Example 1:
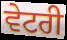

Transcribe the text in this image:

ਵੇਟਰੀ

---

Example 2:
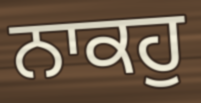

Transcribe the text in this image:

ਨਾਕਹੁ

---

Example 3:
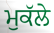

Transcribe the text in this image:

ਮੁਕੱਲੇ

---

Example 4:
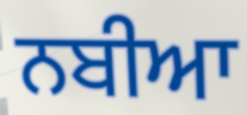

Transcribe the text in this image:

ਨਬੀਆ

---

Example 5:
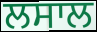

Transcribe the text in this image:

ਲਸਾਲ